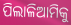
ପିଲାଳିଆମିକୁ